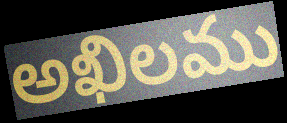
అఖిలము